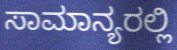
ಸಾಮಾನ್ಯರಲ್ಲಿ